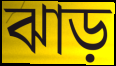
ঝাড়